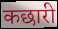
कछारी